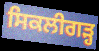
ਸਿਕਲੀਗੜ੍ਹ